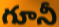
గూనీ